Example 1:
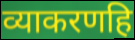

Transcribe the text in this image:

व्याकरणहि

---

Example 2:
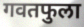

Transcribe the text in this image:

गवतफुला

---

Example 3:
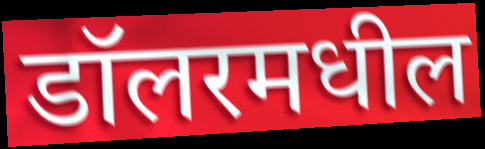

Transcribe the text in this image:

डॉलरमधील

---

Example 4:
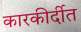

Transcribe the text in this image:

कारकीर्दीत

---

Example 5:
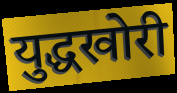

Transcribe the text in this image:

युद्धखोरी